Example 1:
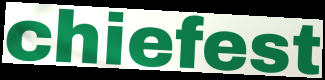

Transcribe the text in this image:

chiefest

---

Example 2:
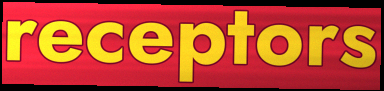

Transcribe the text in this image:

receptors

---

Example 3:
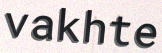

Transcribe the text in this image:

vakhte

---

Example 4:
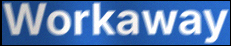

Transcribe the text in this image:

Workaway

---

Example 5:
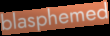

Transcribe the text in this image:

blasphemed